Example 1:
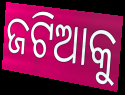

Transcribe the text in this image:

ଜଟିଆକୁ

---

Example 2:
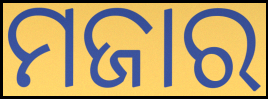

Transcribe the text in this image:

ମଜାର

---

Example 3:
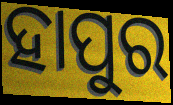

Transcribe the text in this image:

ହାପୁର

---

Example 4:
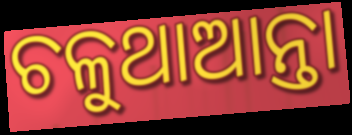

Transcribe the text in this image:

ଚଳୁଥାଆନ୍ତା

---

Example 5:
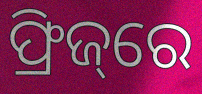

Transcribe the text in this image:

ଫ୍ରିଜ୍‌ରେ